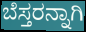
ಬೆಸ್ತರನ್ನಾಗಿ